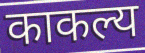
काकल्य